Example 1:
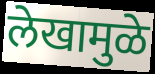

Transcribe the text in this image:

लेखामुळे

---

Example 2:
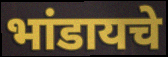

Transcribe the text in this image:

भांडायचे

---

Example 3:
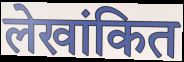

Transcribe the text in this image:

लेखांकित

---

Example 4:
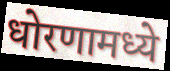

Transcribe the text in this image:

धोरणामध्ये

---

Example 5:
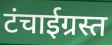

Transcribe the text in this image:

टंचाईग्रस्त